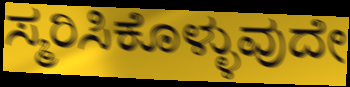
ಸ್ಮರಿಸಿಕೊಳ್ಳುವುದೇ